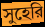
সুহেরি